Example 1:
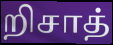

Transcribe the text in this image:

றிசாத்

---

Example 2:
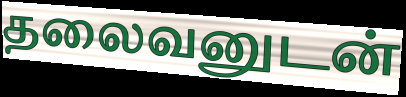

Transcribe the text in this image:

தலைவனுடன்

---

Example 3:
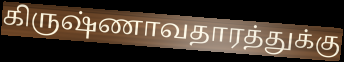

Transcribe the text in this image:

கிருஷ்ணாவதாரத்துக்கு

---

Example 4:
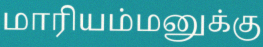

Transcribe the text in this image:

மாரியம்மனுக்கு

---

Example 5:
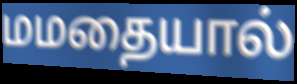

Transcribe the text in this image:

மமதையால்